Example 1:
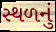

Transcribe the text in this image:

સ્થળનું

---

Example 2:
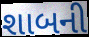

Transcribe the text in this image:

શાબની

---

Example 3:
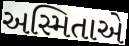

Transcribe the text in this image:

અસ્મિતાએ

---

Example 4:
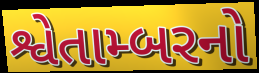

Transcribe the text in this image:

શ્વેતામ્બરનો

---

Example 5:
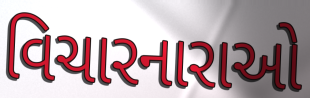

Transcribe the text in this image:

વિચારનારાઓ